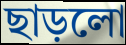
ছাড়লো